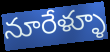
నూరేళ్ళూ